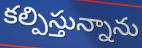
కల్పిస్తున్నాను